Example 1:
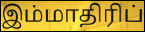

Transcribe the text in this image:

இம்மாதிரிப்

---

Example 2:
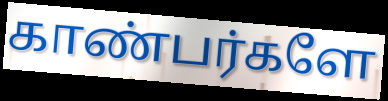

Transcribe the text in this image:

காண்பர்களே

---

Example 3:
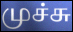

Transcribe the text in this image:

முச்சு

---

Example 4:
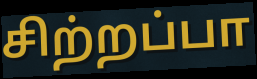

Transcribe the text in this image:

சிற்றப்பா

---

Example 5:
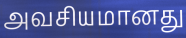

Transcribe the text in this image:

அவசியமானது